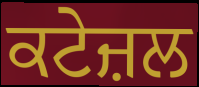
ਕਟੇਜ਼ਲ